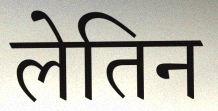
लेतिन